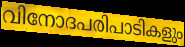
വിനോദപരിപാടികളും